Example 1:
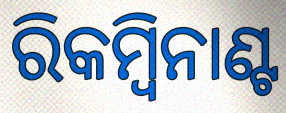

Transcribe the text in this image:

ରିକମ୍ବିନାଣ୍ଟ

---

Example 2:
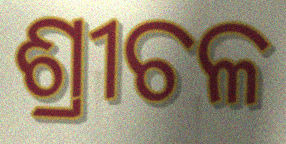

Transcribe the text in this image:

ଶ୍ରୀଚଳ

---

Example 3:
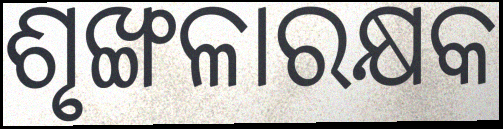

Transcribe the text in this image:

ଶୃଙ୍ଖଳାରକ୍ଷକ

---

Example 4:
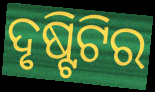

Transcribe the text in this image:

ଦୃଷ୍ଟିଟିର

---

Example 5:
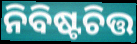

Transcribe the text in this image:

ନିବିଷ୍ଟଚିତ୍ତ